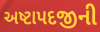
અષ્ટાપદજીની